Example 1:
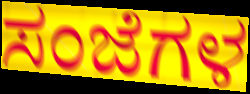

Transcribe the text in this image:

ಸಂಜೆಗಳ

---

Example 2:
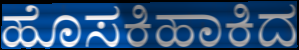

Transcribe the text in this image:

ಹೊಸಕಿಹಾಕಿದ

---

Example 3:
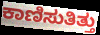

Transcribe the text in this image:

ಕಾಣಿಸುತಿತ್ತು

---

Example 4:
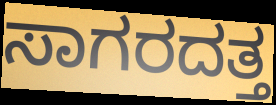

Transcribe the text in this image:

ಸಾಗರದತ್ತ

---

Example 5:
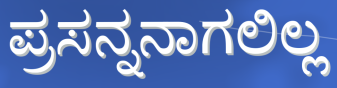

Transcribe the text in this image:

ಪ್ರಸನ್ನನಾಗಲಿಲ್ಲ